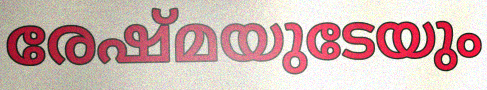
രേഷ്മയുടേയും